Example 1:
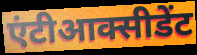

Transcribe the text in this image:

एंटीआक्सीडेंट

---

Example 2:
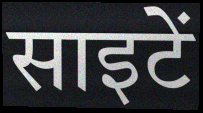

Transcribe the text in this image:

साइटें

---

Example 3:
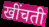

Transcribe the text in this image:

खींचती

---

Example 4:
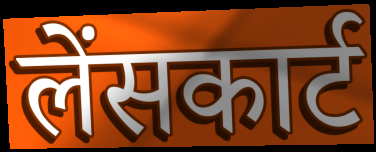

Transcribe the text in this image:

लेंसकार्ट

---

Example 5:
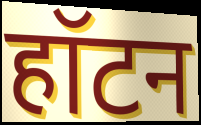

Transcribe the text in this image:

हॉटन